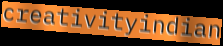
creativityindian